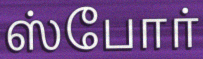
ஸ்போர்